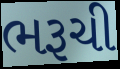
ભરૂચી